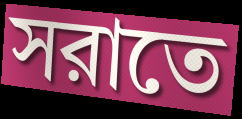
সরাতে